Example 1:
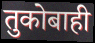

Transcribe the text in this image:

तुकोबाही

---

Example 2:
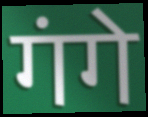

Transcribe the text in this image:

गंगे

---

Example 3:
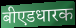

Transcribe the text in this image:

बीएडधारक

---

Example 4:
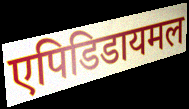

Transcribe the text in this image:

एपिडिडायमल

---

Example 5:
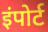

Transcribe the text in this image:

इंपोर्ट